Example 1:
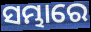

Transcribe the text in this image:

ସମ୍ଭାରେ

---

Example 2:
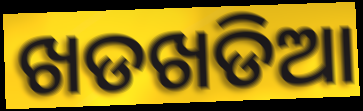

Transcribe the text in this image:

ଖଡଖଡିଆ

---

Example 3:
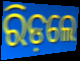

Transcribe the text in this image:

ରିଡ଼ଲେ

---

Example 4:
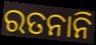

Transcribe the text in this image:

ରତନାନି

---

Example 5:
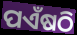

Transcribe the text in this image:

ପଏଁଷଠି